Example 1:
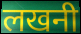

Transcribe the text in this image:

लखनी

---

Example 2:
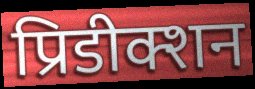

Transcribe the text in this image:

प्रिडीक्शन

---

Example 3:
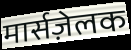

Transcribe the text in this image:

मार्सज़ेलक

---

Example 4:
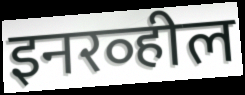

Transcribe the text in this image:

इनरव्हील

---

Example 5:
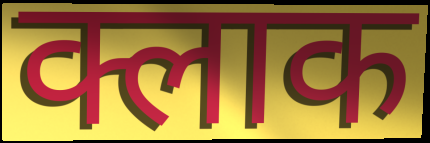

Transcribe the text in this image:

क्लाक